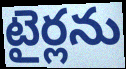
టైర్లను